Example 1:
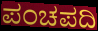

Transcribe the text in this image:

ಪಂಚಪದಿ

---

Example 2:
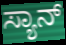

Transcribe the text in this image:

ಸ್ಯಾನ್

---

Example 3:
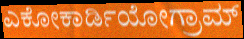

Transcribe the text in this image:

ಎಕೋಕಾರ್ಡಿಯೋಗ್ರಾಮ್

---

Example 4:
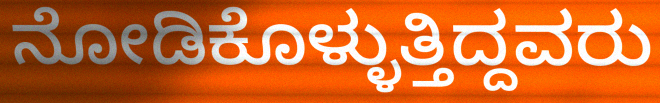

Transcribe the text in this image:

ನೋಡಿಕೊಳ್ಳುತ್ತಿದ್ದವರು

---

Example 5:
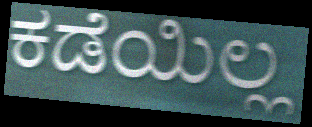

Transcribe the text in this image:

ಕಡೆಯಿಲ್ಲ